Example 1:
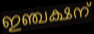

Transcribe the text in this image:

ഇഞ്ചക്ഷന്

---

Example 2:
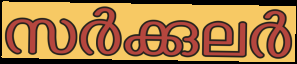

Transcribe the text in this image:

സർക്കുലർ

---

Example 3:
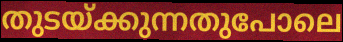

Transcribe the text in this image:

തുടയ്ക്കുന്നതുപോലെ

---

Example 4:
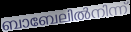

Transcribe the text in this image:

ബാബേലിൽനിന്ന്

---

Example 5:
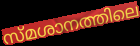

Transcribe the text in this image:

സ്മശാനത്തിലെ